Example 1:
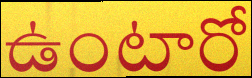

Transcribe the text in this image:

ఉంటారో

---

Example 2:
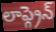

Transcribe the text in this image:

లాఫ్గ్రెన్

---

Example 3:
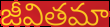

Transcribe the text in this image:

జీవితమా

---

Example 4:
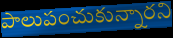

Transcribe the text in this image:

పాలుపంచుకున్నారని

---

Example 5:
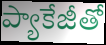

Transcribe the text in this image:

ప్యాకేజీతో